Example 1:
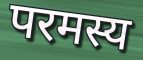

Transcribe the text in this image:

परमस्य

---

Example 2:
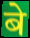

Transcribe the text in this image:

बे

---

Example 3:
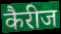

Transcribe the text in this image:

कैरीज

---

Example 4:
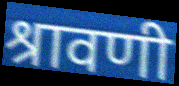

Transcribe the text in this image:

श्रावणी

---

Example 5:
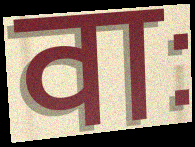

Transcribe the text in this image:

वाः